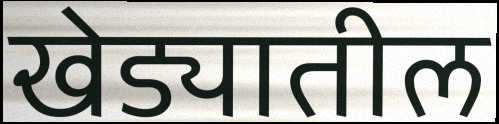
खेड्यातील